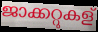
ജാക്കറ്റുകള്